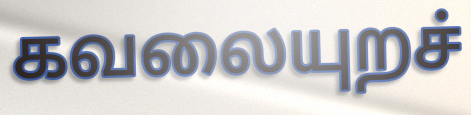
கவலையுறச்